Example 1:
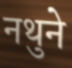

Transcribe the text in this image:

नथुने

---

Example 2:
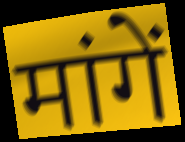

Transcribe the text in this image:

मांगें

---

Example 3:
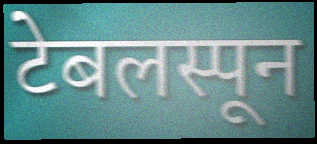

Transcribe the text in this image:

टेबलस्पून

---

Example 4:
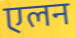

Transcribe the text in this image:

एलन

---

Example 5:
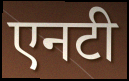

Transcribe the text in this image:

एनटी